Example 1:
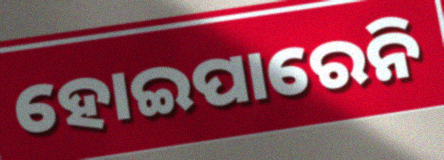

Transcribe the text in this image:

ହୋଇପାରେନି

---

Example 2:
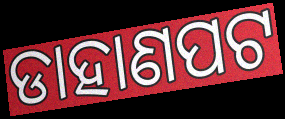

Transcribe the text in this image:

ଡାହାଣପଟ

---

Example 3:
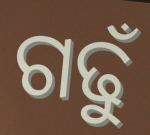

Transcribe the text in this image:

ଗଢୁଁ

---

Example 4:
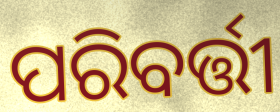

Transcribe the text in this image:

ପରିବର୍ତ୍ତୀ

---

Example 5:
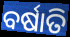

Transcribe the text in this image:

ବର୍ଷାତି